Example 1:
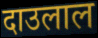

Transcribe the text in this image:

दाउलाल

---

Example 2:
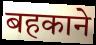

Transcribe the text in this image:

बहकाने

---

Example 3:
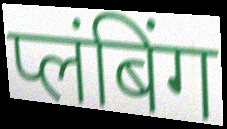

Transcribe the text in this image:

प्लंबिंग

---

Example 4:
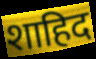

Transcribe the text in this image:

शाहिद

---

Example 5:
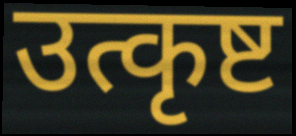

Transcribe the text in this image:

उत्कृष्ट